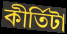
কীর্তিটা